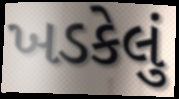
ખડકેલું